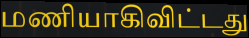
மணியாகிவிட்டது